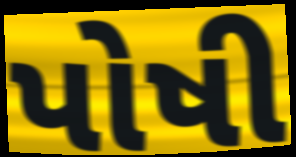
પોષી